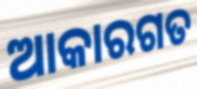
ଆକାରଗତ